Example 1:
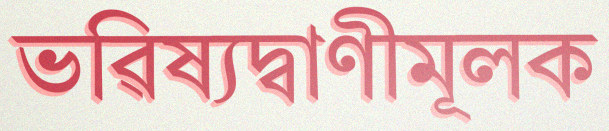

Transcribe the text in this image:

ভৱিষ্যদ্বাণীমূলক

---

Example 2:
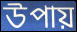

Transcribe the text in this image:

উপায়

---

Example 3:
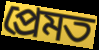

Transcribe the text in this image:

প্ৰেমত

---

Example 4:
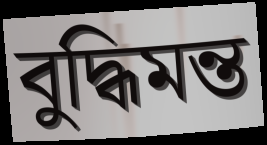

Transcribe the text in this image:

বুদ্ধিমন্ত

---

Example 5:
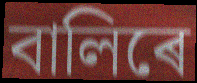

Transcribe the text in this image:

বালিৰে